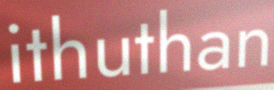
ithuthan